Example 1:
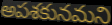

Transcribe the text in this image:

అపశకునమని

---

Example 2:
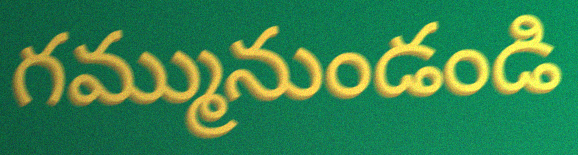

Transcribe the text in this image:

గమ్మునుండండి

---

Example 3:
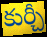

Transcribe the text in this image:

కుర్చీ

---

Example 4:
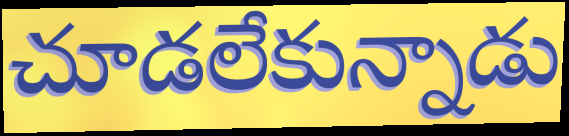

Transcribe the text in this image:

చూడలేకున్నాడు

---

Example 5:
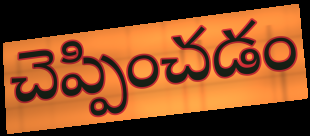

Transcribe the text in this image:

చెప్పించడం